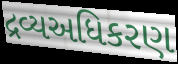
દ્રવ્યઅધિકરણ